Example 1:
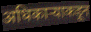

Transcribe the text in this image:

अधिकाऱ्याकडून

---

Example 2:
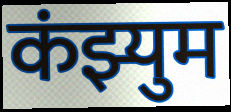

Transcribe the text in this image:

कंझ्युम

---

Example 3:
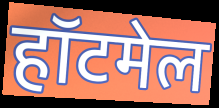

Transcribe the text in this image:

हॉटमेल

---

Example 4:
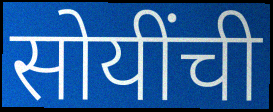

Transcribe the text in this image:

सोयींची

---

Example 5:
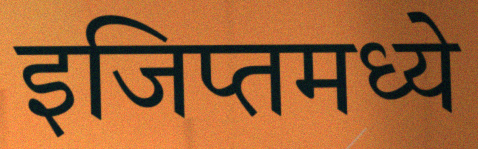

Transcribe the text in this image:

इजिप्तमध्ये